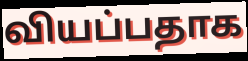
வியப்பதாக